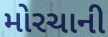
મોરચાની